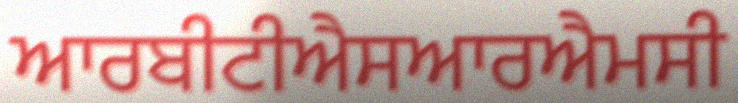
ਆਰਬੀਟੀਐਸਆਰਐਮਸੀ